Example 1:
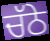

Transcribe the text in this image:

ਚੱਠੇ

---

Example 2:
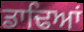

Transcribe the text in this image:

ਡਾਢਿਆਂ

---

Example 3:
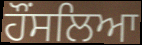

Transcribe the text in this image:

ਹੌਂਸਲਿਆ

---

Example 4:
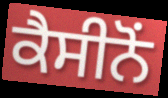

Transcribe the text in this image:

ਕੈਸੀਨੋਂ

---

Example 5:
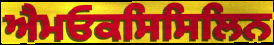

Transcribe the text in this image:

ਐਮਓਕਸਿਸਿਲਿਨ